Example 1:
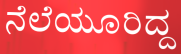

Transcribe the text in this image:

ನೆಲೆಯೂರಿದ್ದ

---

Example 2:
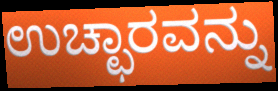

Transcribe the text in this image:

ಉಚ್ಛಾರವನ್ನು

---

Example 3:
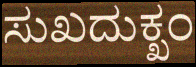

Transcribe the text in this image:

ಸುಖದುಕ್ಖಂ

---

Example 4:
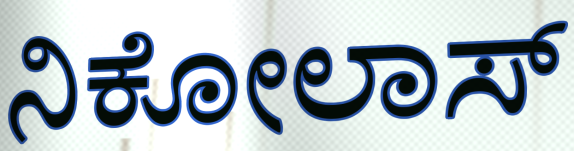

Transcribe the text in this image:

ನಿಕೋಲಾಸ್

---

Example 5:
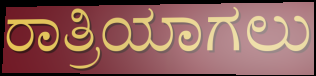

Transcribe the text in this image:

ರಾತ್ರಿಯಾಗಲು